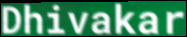
Dhivakar